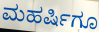
ಮಹರ್ಷಿಗೂ